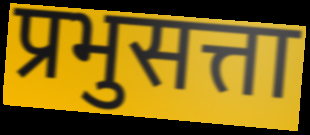
प्रभुसत्ता